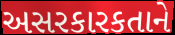
અસરકારકતાને